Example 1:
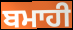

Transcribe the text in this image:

ਬਮਾਹੀ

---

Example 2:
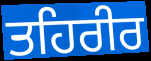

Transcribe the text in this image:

ਤਹਿਰੀਰ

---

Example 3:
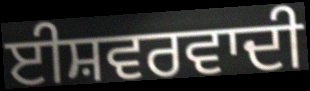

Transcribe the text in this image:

ਈਸ਼ਵਰਵਾਦੀ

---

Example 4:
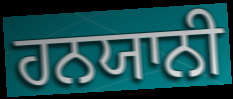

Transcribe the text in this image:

ਹਨਯਾਨੀ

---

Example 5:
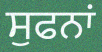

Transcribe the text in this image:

ਸੁਫਨਾਂ